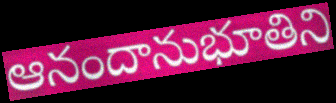
ఆనందానుభూతిని